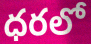
ధరలో